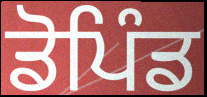
ਡੋਪਿੰਡ